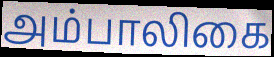
அம்பாலிகை